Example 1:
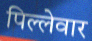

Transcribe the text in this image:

पिल्लेवार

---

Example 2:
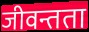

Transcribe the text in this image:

जीवन्तता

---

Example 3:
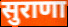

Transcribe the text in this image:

सुराणा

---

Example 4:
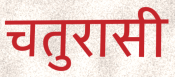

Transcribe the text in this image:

चतुरासी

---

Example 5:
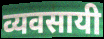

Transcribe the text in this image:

व्यवसायी